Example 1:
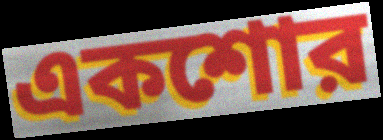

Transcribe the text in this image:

একশোর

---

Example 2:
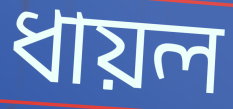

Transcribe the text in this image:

ধায়ল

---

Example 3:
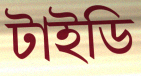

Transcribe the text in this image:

টাইডি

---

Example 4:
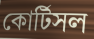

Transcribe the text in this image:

কোর্টিসল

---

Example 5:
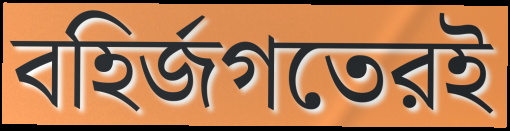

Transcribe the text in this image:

বহির্জগতেরই